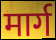
मार्ग